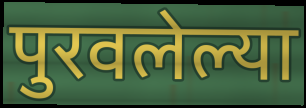
पुरवलेल्या